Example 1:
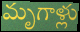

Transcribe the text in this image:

మృగాళ్లు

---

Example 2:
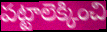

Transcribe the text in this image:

పట్టాలెక్కించి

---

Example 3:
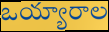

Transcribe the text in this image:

ఒయ్యారాల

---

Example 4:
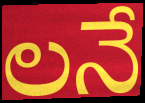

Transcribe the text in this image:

లనే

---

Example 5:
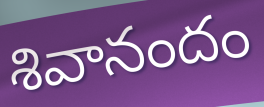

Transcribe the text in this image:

శివానందం